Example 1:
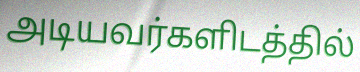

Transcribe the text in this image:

அடியவர்களிடத்தில்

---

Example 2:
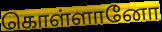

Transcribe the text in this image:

கொள்ளானோ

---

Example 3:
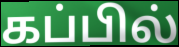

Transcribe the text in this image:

கப்பில்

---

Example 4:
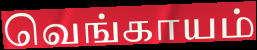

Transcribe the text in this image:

வெங்காயம்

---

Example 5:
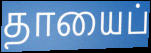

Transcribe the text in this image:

தாயைப்